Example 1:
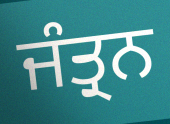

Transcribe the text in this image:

ਜੰਤ੍ਰਨ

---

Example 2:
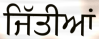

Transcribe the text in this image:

ਜਿੱਤੀਆਂ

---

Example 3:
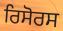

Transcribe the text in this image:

ਰਿਸੋਰਸ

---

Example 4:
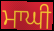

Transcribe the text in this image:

ਮਾਘੀ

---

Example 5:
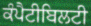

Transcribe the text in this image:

ਕੰਪੈਟੀਬਿਲਟੀ